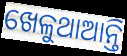
ଖେଳୁଥାଆନ୍ତି